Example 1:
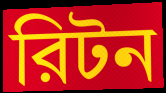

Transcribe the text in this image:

রিটন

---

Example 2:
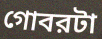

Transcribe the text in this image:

গোবরটা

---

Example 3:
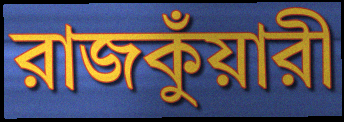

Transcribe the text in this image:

রাজকুঁয়ারী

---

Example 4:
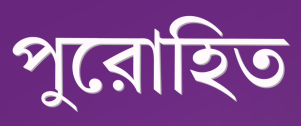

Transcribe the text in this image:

পুরোহিত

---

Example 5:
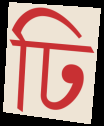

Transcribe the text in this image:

ঢি